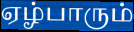
ஏழ்பாரும்